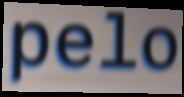
pelo